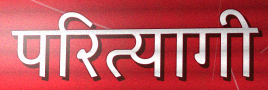
परित्यागी